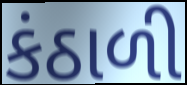
કંઠાળી